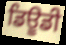
ਡਿਊਡੀ